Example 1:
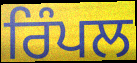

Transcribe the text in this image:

ਰਿੰਪਲ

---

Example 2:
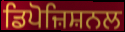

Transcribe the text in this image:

ਡਿਪੋਜ਼ਿਸ਼ਨਲ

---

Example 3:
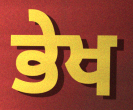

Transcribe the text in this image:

ਭੇਖ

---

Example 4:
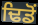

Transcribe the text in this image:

ਢਿਡੋਂ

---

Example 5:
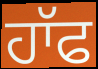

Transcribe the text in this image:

ਹਾੱਫ